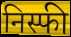
निस्फी